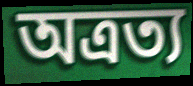
অত্রত্য